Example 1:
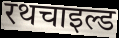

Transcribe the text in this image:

रथचाइल्ड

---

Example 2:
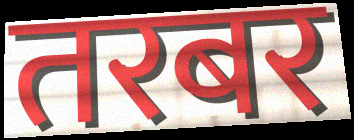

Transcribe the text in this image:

तरबर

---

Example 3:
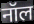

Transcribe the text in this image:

नॉल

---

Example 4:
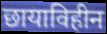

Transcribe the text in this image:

छायाविहीन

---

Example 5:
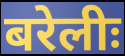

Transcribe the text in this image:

बरेलीः